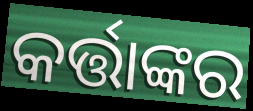
କର୍ତ୍ତାଙ୍କର